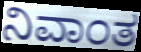
ನಿವಾಂತ